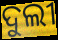
ଦୁଲୀ